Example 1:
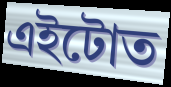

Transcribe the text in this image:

এইটোত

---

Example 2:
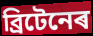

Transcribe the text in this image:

ব্ৰিটেনেৰ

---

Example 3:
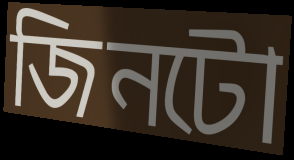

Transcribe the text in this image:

জিনটো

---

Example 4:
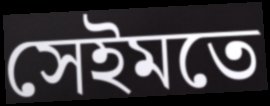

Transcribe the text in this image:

সেইমতে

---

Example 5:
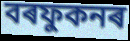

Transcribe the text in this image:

বৰফুকনৰ